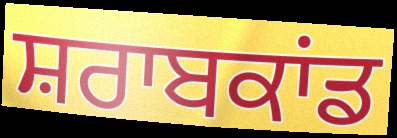
ਸ਼ਰਾਬਕਾਂਡ